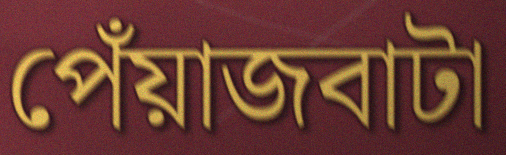
পেঁয়াজবাটা